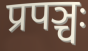
प्रपञ्चः